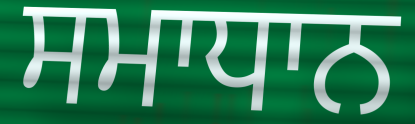
ਸਮਾਧਾਨ